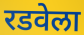
रडवेला